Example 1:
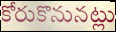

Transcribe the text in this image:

కోరుకొనునట్లు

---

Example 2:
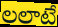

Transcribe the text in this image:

లలాటే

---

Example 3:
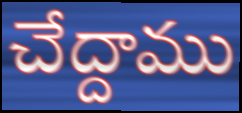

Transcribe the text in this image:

చేద్దాము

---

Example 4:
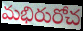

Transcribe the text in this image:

మభిరురోచ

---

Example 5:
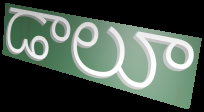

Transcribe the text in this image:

డాలూ